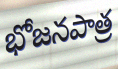
భోజనపాత్ర